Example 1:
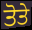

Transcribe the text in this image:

ਤੋਤੇ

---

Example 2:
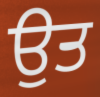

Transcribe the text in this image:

ਉਤ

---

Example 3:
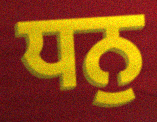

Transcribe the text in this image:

ਧਨੁ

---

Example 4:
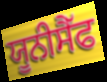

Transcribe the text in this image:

ਯੂਨੀਸੈੱਫ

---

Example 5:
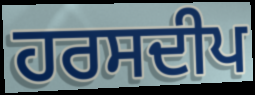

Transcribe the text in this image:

ਹਰਸਦੀਪ